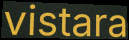
vistara